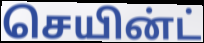
செயின்ட்